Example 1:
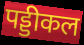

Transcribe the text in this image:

पड्डीकल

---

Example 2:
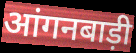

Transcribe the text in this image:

आंगनबाड़ी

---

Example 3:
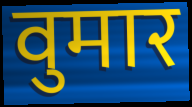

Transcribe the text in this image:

वुमार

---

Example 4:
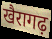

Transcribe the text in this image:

खैरागढ़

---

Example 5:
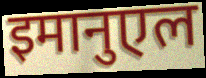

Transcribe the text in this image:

इमानुएल